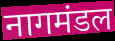
नागमंडल